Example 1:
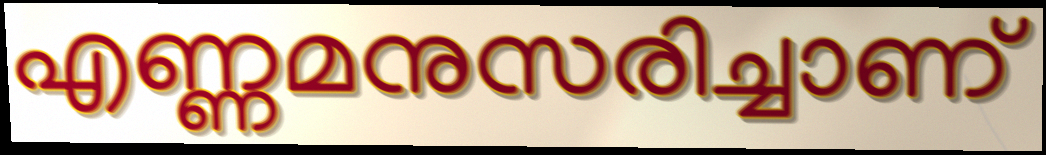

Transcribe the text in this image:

എണ്ണമനുസരിച്ചാണ്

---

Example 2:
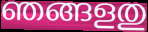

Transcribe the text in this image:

ഞങ്ങളതു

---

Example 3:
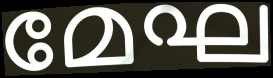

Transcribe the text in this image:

മേഘ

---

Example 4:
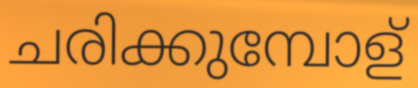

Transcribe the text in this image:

ചരിക്കുമ്പോള്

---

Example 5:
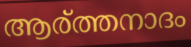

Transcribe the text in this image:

ആര്ത്തനാദം